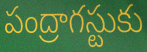
పంద్రాగస్టుకు